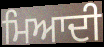
ਮਿਆਦੀ